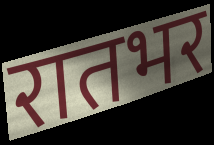
रातभर